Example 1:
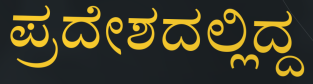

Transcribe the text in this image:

ಪ್ರದೇಶದಲ್ಲಿದ್ದ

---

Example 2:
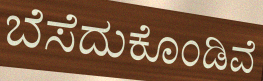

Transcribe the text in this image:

ಬೆಸೆದುಕೊಂಡಿವೆ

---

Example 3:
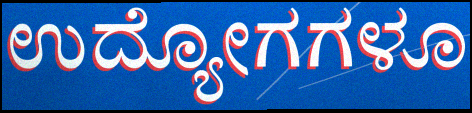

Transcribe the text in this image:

ಉದ್ಯೋಗಗಳೂ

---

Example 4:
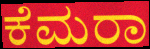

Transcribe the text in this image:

ಕೆಮರಾ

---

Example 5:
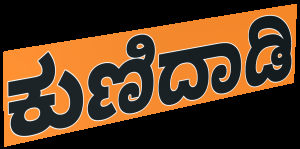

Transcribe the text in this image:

ಕುಣಿದಾಡಿ